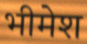
भीमेश